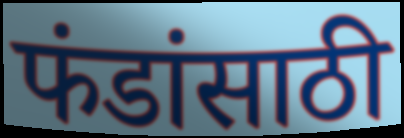
फंडांसाठी